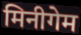
मिनीगेम